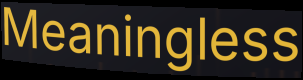
Meaningless